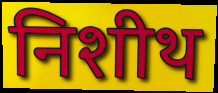
निशीथ